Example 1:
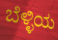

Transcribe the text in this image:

ಬೆಳ್ಳಿಯ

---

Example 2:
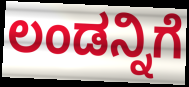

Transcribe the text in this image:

ಲಂಡನ್ನಿಗೆ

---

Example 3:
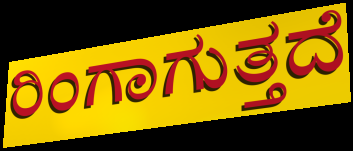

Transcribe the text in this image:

ರಿಂಗಾಗುತ್ತದೆ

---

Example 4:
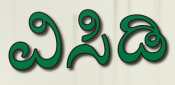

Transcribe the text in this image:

ವಿಸಿಡಿ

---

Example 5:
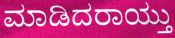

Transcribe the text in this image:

ಮಾಡಿದರಾಯ್ತು